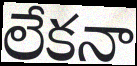
లేకనా